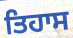
ਤਿਹਾਸ